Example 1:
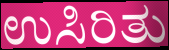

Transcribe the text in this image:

ಉಸಿರಿತು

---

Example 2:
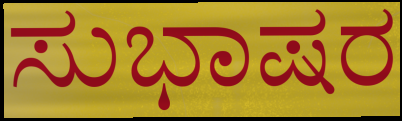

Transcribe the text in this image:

ಸುಭಾಷರ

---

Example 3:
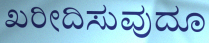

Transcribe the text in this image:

ಖರೀದಿಸುವುದೂ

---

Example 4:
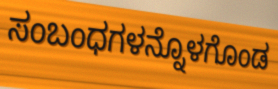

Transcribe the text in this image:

ಸಂಬಂಧಗಳನ್ನೊಳಗೊಂಡ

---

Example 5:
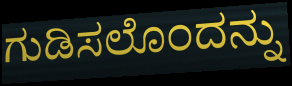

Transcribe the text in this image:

ಗುಡಿಸಲೊಂದನ್ನು